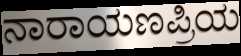
ನಾರಾಯಣಪ್ರಿಯ